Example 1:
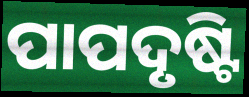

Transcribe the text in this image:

ପାପଦୃଷ୍ଟି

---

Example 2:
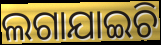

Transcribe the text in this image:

ଲଗାଯାଇଚି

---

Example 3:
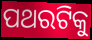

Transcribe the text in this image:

ପଥରଟିକୁ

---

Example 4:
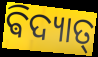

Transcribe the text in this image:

ଵିଦ୍ଯାତ୍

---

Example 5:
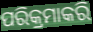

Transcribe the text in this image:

ପରିକ୍ରମାକରି